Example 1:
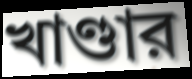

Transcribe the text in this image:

খাণ্ডার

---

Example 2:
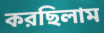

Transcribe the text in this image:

করছিলাম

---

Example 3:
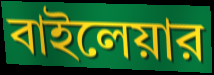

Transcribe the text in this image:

বাইলেয়ার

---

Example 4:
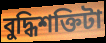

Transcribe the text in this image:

বুদ্ধিশক্তিটা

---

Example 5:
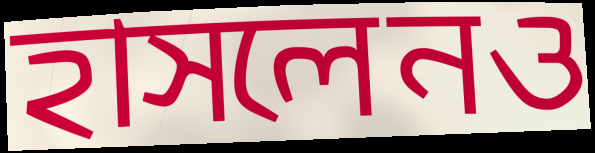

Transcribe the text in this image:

হাসলেনও